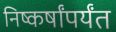
निष्कर्षांपर्यंत